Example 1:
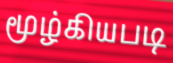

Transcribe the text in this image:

மூழ்கியபடி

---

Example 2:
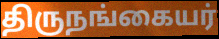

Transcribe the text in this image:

திருநங்கையர்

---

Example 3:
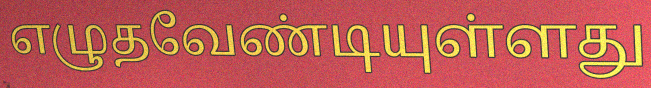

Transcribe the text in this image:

எழுதவேண்டியுள்ளது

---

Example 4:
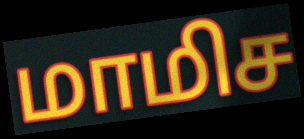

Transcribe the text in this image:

மாமிச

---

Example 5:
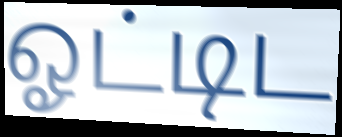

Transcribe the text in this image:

ஓட்டிட